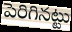
పెరిగినట్టు